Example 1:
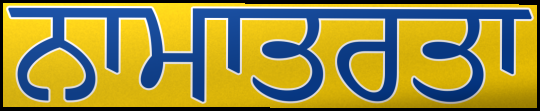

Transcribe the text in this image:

ਨਾਮਾਤਰਤਾ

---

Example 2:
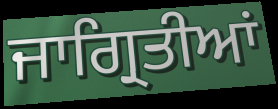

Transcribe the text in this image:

ਜਾਗ੍ਰਿਤੀਆਂ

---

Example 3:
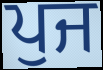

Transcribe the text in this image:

ਪੁਜ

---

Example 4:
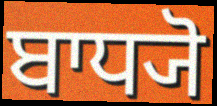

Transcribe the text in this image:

ਬਾਧ੍ਯੋ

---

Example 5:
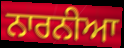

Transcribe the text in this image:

ਨਾਰਨੀਆ